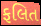
ફલિત